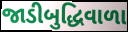
જાડીબુદ્ધિવાળા